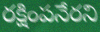
రక్షింపనేరని